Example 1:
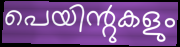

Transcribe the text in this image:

പെയിന്റുകളും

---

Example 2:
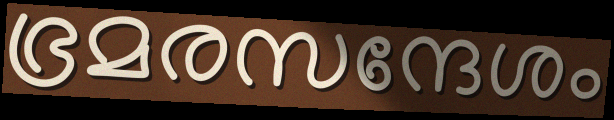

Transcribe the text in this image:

ഭ്രമരസന്ദേശം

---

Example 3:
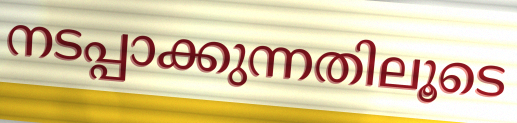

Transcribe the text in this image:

നടപ്പാക്കുന്നതിലൂടെ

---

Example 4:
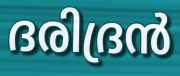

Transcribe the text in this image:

ദരിദ്രൻ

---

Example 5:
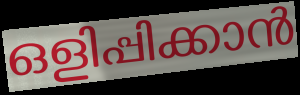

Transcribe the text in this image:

ഒളിപ്പിക്കാൻ